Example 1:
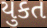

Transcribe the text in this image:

યુકત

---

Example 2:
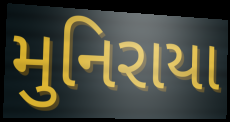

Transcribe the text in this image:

મુનિરાયા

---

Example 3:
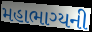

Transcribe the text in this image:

મહાભાગ્યની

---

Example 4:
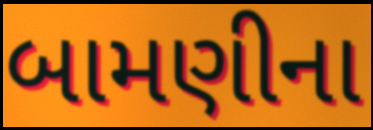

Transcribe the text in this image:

બામણીના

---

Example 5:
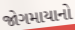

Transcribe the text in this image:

જોગમાયાનો